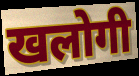
खलोगी